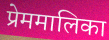
प्रेममालिका